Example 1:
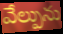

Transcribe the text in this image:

వేల్పును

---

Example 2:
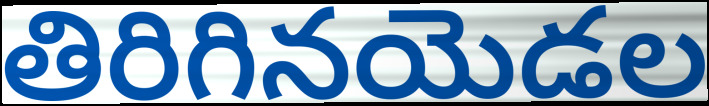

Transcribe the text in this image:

తిరిగినయెడల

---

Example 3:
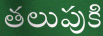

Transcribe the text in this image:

తలుపుకి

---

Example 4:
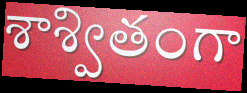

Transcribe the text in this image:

శాశ్వితంగా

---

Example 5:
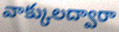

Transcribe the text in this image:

వాక్కులద్వారా